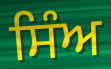
ਸਿੰਅ